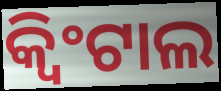
କ୍ୱିଂଟାଲ